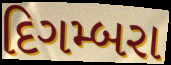
દિગમ્બરા